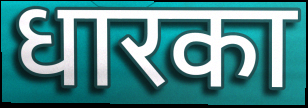
धारका